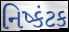
નિષ્કંટક